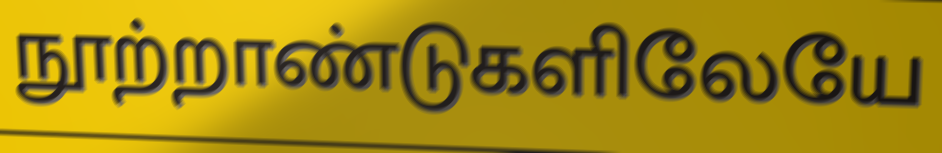
நூற்றாண்டுகளிலேயே